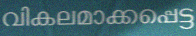
വികലമാക്കപ്പെട്ട